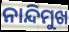
ନାନ୍ଦିମୁଖ